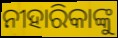
ନୀହାରିକାଙ୍କୁ